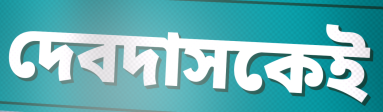
দেবদাসকেই